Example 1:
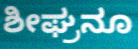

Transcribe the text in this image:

ಶೀಘ್ರನೂ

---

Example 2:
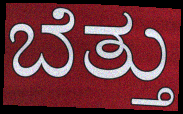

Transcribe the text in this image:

ಬೆತ್ತು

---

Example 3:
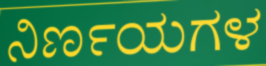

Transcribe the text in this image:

ನಿರ್ಣಯಗಳ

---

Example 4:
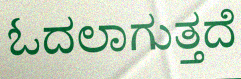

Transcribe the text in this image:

ಓದಲಾಗುತ್ತದೆ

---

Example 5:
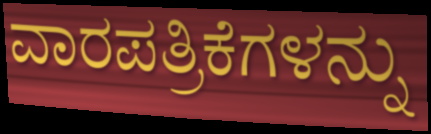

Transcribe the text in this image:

ವಾರಪತ್ರಿಕೆಗಳನ್ನು